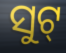
ସୁଟ୍